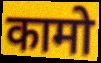
कामो